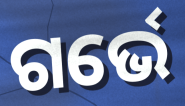
ଗର୍ଭେ